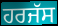
ਹਰਜੱਸ